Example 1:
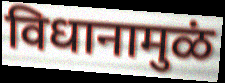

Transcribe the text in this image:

विधानामुळं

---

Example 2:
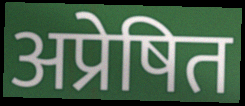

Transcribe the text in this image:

अप्रेषित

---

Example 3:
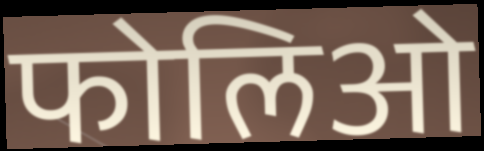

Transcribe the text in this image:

फोलिओ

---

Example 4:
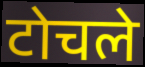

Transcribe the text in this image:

टोचले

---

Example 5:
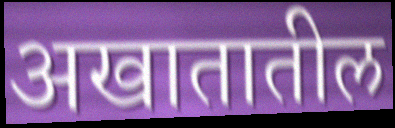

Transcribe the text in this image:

अखातातील